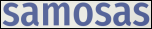
samosas